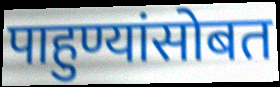
पाहुण्यांसोबत